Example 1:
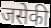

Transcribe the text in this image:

जसेकी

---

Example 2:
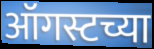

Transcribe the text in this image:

ऑगस्टच्या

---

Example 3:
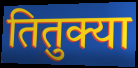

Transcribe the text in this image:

तितुक्या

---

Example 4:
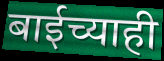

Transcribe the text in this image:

बाईच्याही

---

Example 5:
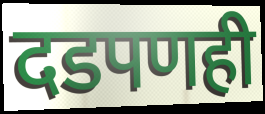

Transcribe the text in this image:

दडपणही